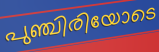
പുഞ്ചിരിയോടെ